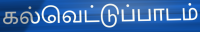
கல்வெட்டுப்பாடம்